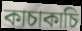
কাচাকাচি